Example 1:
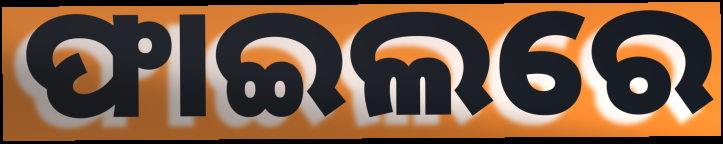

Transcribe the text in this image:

ଫାଇଲରେ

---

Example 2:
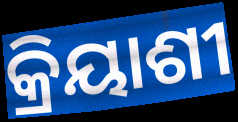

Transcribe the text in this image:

କ୍ରିୟାଶୀ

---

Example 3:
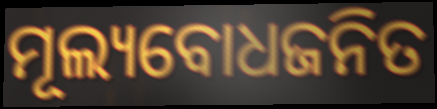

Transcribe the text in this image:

ମୂଲ୍ୟବୋଧଜନିତ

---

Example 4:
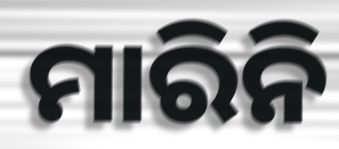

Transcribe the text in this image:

ମାରିନି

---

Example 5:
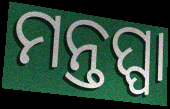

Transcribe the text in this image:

ମନ୍ତପ୍ପା